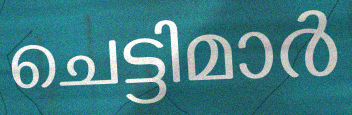
ചെട്ടിമാർ